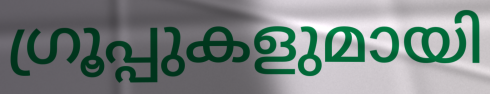
ഗ്രൂപ്പുകളുമായി